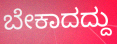
ಬೇಕಾದದ್ದು